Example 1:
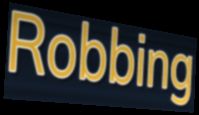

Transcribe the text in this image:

Robbing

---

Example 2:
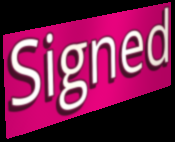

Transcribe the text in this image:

Signed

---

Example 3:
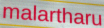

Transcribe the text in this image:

malartharu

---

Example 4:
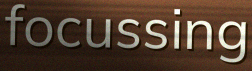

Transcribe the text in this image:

focussing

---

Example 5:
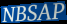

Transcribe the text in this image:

NBSAP